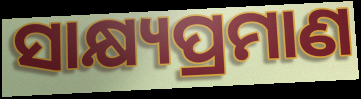
ସାକ୍ଷ୍ୟପ୍ରମାଣ